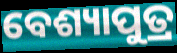
ବେଶ୍ୟାପୁତ୍ର